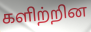
களிற்றின